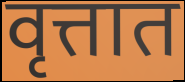
वृत्तात